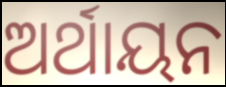
ଅର୍ଥାୟନ